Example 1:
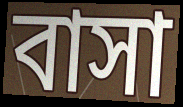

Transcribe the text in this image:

বাসা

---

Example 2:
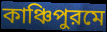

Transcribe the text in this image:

কাঞ্চিপুরমে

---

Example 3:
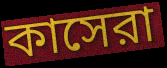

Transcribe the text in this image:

কাসেরা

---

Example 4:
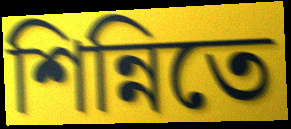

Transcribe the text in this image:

শিন্নিতে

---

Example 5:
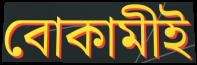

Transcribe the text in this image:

বোকামীই